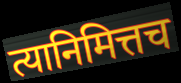
त्यानिमित्तच